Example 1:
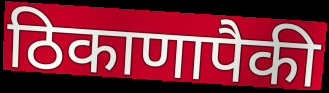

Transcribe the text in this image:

ठिकाणापैकी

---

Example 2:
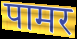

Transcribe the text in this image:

पामर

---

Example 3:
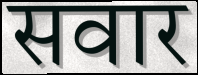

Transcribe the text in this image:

सवार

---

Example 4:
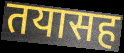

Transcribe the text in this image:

तयासह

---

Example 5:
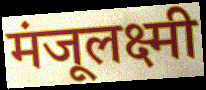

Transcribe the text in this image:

मंजूलक्ष्मी